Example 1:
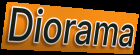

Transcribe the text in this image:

Diorama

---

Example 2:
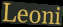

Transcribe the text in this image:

Leoni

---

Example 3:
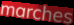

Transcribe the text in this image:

marches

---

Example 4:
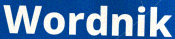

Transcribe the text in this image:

Wordnik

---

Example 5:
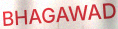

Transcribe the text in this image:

BHAGAWAD